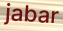
jabar